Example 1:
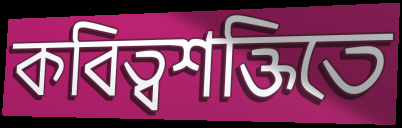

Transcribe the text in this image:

কবিত্বশক্তিতে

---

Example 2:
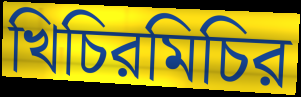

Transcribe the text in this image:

খিচিরমিচির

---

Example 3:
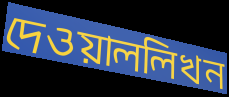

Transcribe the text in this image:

দেওয়াললিখন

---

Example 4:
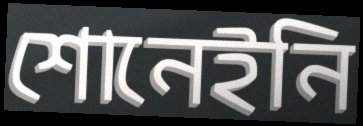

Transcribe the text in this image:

শোনেইনি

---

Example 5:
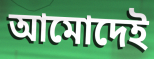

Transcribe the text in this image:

আমোদেই